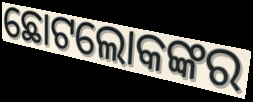
ଛୋଟଲୋକଙ୍କର